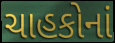
ચાહકોનાં